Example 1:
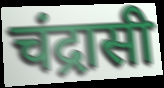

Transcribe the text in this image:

चंद्रासी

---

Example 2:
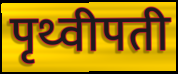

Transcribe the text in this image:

पृथ्वीपती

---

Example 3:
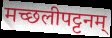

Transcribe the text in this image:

मच्छलीपट्टनम्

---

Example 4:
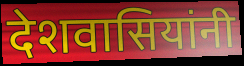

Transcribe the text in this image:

देशवासियांनी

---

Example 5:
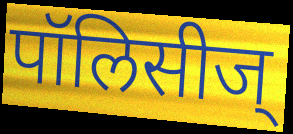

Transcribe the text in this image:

पॉलिसीज्